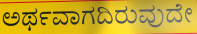
ಅರ್ಥವಾಗದಿರುವುದೇ